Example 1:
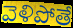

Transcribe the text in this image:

వెళిపోతే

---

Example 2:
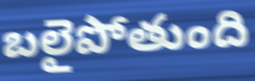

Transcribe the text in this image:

బలైపోతుంది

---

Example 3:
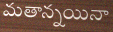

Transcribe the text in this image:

మతాన్నయినా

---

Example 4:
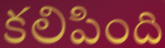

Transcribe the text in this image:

కలిపింది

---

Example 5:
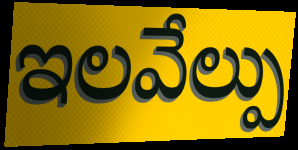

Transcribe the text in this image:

ఇలవేల్పు